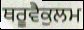
ਥਰੂਵੈਕੁਲਮ